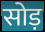
सोड़